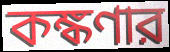
কঙ্কণার